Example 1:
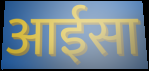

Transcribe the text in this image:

आईसा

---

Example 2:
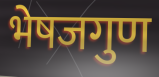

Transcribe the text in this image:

भेषजगुण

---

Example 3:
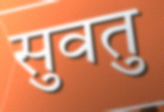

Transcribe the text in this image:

सुवतु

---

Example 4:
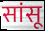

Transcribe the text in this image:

सांसू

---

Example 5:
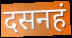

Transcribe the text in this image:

दसनहं